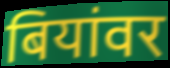
बियांवर